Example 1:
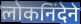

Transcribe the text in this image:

लोकनिंदेने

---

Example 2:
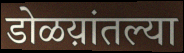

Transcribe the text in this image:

डोळय़ांतल्या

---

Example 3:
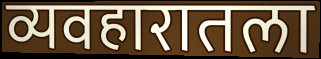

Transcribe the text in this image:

व्यवहारातला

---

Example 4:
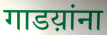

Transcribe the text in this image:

गाडय़ांना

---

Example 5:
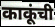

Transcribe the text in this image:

काकूंची